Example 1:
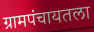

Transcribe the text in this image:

ग्रामपंचायतला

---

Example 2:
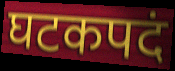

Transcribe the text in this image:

घटकपदं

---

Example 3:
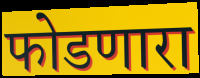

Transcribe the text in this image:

फोडणारा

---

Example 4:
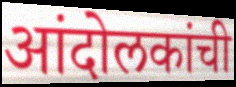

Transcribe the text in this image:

आंदोलकांची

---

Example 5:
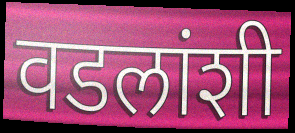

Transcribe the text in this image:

वडलांशी